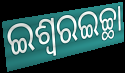
ଇଶ୍ୱରଇଚ୍ଛା